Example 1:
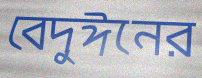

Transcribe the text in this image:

বেদুঈনের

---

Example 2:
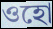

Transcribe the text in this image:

ওহো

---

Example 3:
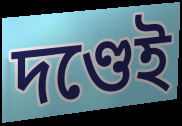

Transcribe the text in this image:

দণ্ডেই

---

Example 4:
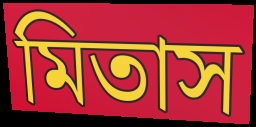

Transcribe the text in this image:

মিতাস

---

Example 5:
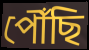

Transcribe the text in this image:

পৌঁছি